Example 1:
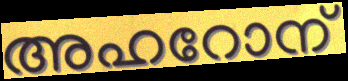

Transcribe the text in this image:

അഹറോന്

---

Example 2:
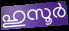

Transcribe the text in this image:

ഹുസൂർ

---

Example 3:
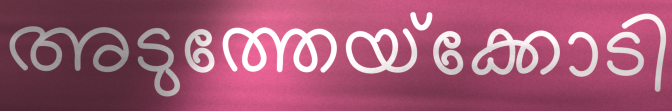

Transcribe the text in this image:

അടുത്തേയ്‌ക്കോടി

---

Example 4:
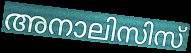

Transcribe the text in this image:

അനാലിസിസ്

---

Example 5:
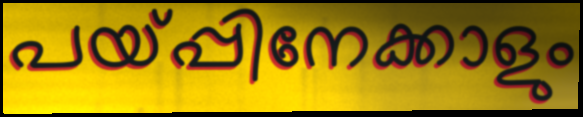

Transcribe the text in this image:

പയ്പ്പിനേക്കാളും